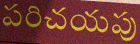
పరిచయపు